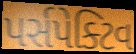
પર્સપેક્ટિવ